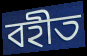
বহীত